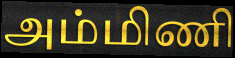
அம்மிணி